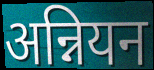
अन्नियन